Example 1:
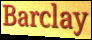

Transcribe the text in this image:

Barclay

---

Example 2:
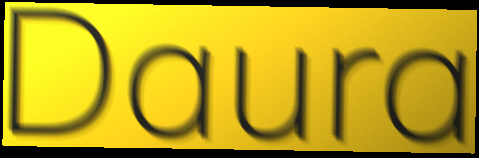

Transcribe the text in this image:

Daura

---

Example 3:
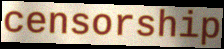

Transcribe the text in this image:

censorship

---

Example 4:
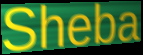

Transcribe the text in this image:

Sheba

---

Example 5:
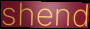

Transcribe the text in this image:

shend